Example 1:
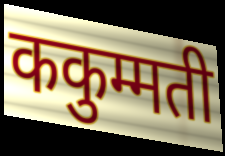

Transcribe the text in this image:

ककुम्मती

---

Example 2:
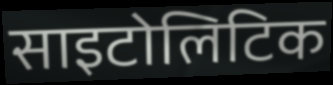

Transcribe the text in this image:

साइटोलिटिक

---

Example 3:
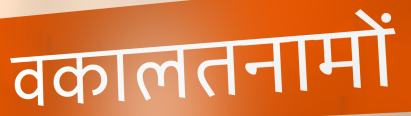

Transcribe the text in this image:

वकालतनामों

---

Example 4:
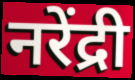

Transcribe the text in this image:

नरेंद्री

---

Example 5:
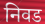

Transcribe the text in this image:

निवड